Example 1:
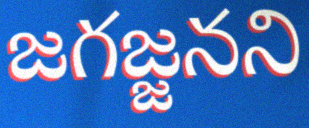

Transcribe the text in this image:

జగజ్జనని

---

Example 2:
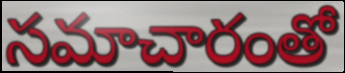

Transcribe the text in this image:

సమాచారంతో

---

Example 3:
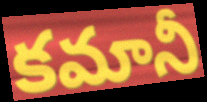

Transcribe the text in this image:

కమానీ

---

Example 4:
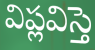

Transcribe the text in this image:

విప్లవిస్తె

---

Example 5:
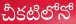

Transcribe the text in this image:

చీకటిలోనో